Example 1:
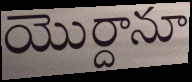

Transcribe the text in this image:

యొర్దానూ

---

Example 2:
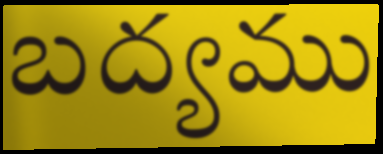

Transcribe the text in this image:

బద్యము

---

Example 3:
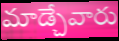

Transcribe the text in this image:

మాడ్చేవారు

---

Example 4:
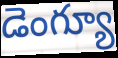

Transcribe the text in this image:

డెంగ్యూ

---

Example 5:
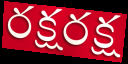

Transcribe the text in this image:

రక్షరక్ష